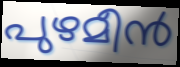
പുഴമീൻ